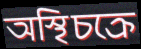
অস্থিচক্রে